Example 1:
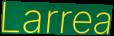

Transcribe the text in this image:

Larrea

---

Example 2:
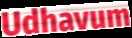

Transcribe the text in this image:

Udhavum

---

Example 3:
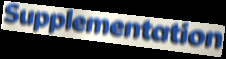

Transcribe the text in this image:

Supplementation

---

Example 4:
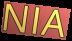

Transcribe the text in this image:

NIA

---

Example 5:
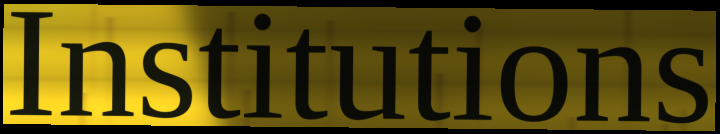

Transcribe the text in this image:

Institutions